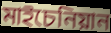
মাইচেনিয়ান